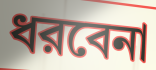
ধরবেনা